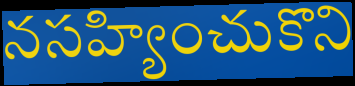
నసహ్యించుకొని